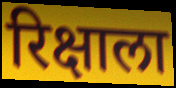
रिक्षाला